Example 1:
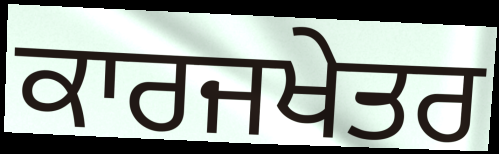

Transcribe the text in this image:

ਕਾਰਜਖੇਤਰ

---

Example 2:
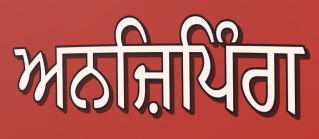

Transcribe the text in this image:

ਅਨਜ਼ਿਪਿੰਗ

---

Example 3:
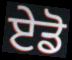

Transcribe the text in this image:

ਏਡੋ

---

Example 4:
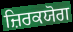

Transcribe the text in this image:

ਜ਼ਿਰਕਯੋਗ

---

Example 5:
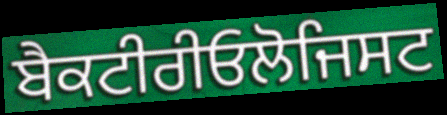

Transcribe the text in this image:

ਬੈਕਟੀਰੀਓਲੋਜਿਸਟ